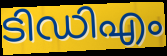
ടിഡിഎം